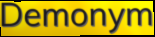
Demonym